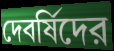
দেবর্ষিদের